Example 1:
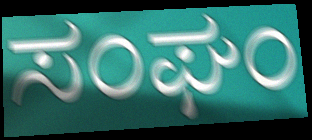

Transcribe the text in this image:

ಸಂಘಂ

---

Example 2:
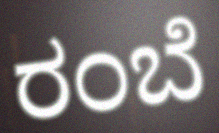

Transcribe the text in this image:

ರಂಬೆ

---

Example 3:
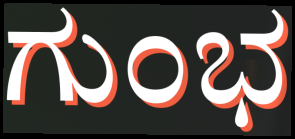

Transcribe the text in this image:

ಗುಂಭ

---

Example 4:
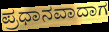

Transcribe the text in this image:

ಪ್ರಧಾನವಾದಾಗ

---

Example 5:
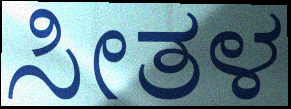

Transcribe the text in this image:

ಸೀತಳ